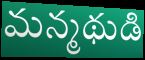
మన్మథుడి